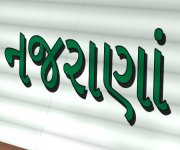
નજરાણાં